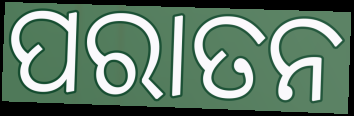
ପରାତନ